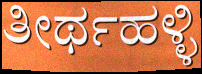
ತೀರ್ಥಹಳ್ಳಿ